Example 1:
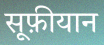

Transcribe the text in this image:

सूफ़ीयान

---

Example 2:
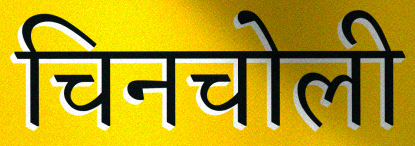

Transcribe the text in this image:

चिनचोली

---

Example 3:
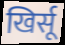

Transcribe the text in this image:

खिर्सू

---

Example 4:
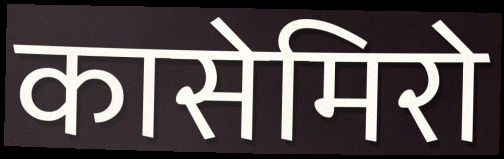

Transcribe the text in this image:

कासेमिरो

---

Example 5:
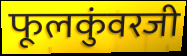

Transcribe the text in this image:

फूलकुंवरजी